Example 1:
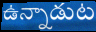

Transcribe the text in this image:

ఉన్నాడుట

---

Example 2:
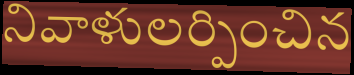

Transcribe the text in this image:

నివాళులర్పించిన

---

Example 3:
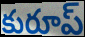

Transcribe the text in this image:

కురూప్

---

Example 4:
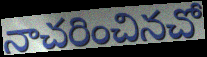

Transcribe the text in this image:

నాచరించినచో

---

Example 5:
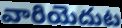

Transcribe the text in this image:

వారియెదుట